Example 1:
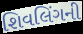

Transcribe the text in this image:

શિવલિંગની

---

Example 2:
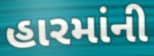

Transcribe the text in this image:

હારમાંની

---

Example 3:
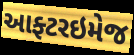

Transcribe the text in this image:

આફ્ટરઇમેજ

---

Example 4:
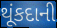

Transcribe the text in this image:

થૂંકદાની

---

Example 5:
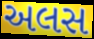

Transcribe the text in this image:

અલસ